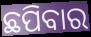
ଛପିବାର